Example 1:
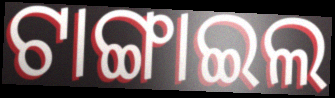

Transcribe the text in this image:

ଟାଙ୍ଗାଇଲ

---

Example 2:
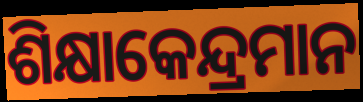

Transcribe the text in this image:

ଶିକ୍ଷାକେନ୍ଦ୍ରମାନ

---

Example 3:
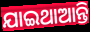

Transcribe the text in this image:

ଯାଇଥାଆନ୍ତି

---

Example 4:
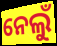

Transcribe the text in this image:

ନେଲୁଁ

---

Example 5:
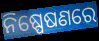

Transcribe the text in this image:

ନିଷ୍ପେଷଣରେ